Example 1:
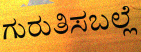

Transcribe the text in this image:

ಗುರುತಿಸಬಲ್ಲೆ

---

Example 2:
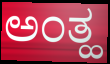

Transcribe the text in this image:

ಅಂತ್ಹ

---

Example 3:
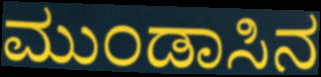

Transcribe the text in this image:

ಮುಂಡಾಸಿನ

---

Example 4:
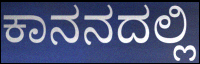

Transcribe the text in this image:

ಕಾನನದಲ್ಲಿ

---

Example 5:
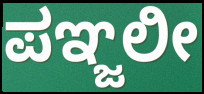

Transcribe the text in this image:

ಪಞ್ಜಲೀ